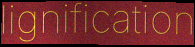
lignification